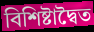
বিশিষ্টাদ্বৈত